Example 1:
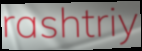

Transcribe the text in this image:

rashtriy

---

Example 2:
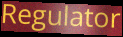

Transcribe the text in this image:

Regulator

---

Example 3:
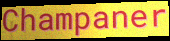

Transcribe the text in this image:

Champaner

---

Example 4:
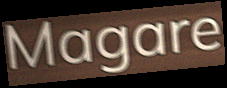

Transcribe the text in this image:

Magare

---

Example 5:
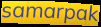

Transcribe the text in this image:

samarpak